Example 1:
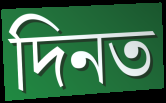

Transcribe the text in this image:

দিনত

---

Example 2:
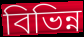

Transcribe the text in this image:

বিভিন্ন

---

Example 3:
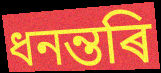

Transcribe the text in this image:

ধনন্তৰি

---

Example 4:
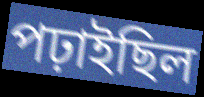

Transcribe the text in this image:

পঢ়াইছিল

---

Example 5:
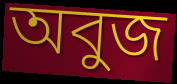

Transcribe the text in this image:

অবুজ